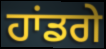
ਹਾਂਡਗੇ